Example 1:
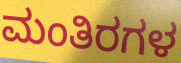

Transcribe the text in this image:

ಮಂತಿರಗಳ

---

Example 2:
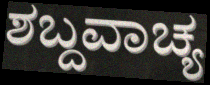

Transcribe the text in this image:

ಶಬ್ದವಾಚ್ಯ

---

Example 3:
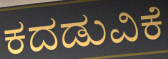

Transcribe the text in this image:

ಕದಡುವಿಕೆ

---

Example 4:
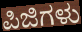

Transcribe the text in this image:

ಪಿಜಿಗಳು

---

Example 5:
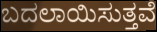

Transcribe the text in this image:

ಬದಲಾಯಿಸುತ್ತವೆ